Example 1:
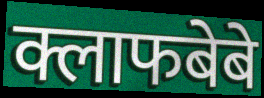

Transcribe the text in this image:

क्लाफबेबे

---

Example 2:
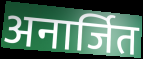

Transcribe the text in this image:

अनार्जित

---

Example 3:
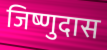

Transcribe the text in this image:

जिष्णुदास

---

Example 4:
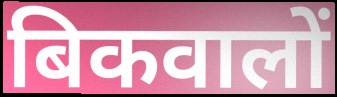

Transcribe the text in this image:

बिकवालों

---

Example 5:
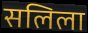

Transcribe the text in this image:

सलिला